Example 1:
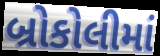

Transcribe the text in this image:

બ્રોકોલીમાં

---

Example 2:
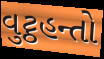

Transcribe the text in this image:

વુટ્ઠહન્તો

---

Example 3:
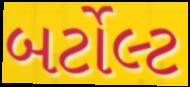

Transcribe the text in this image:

બર્ટોલ્ટ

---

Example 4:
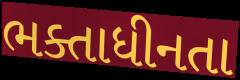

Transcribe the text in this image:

ભક્તાધીનતા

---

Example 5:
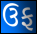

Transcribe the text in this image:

ઉફ